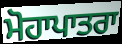
ਮੋਹਾਪਾਤਰਾ